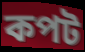
কপট